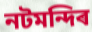
নটমন্দিৰ